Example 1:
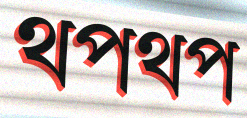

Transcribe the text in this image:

থপথপ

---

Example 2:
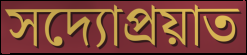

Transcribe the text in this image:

সদ্যোপ্রয়াত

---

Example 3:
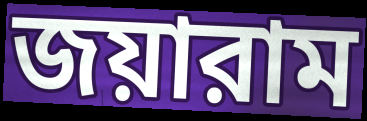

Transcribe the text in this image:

জয়ারাম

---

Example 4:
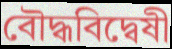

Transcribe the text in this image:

বৌদ্ধবিদ্বেষী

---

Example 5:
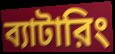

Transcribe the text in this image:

ব্যাটারিং